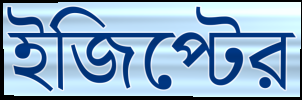
ইজিপ্টের